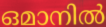
ഒമാനിൽ